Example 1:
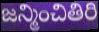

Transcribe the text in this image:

జన్మించితిరి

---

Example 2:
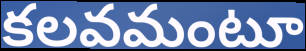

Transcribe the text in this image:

కలవమంటూ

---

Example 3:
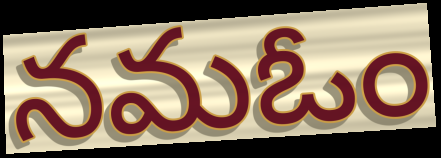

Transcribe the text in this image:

నమఓం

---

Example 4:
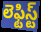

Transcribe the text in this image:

లెఫ్టిస్ట్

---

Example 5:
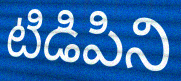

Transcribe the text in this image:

టిడిపిని